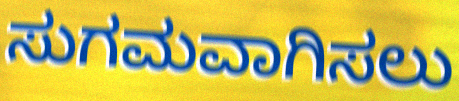
ಸುಗಮವಾಗಿಸಲು